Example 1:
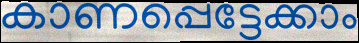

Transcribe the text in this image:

കാണപ്പെട്ടേക്കാം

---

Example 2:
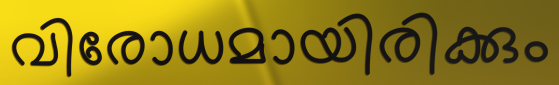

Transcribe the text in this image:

വിരോധമായിരിക്കും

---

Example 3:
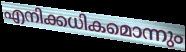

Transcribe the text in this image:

എനിക്കധികമൊന്നും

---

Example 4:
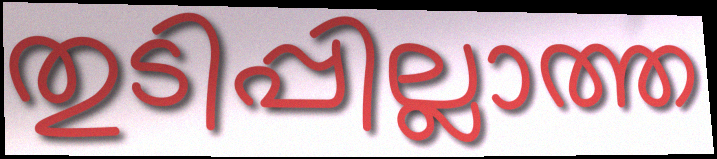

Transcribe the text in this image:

തുടിപ്പില്ലാത്ത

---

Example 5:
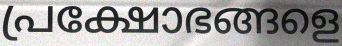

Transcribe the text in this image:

പ്രക്ഷോഭങ്ങളെ